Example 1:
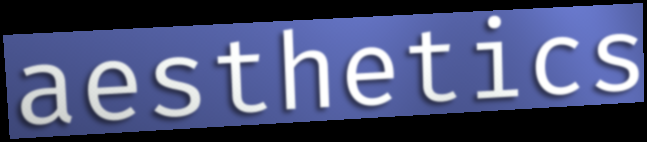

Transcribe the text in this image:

aesthetics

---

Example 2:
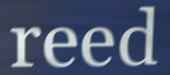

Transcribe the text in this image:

reed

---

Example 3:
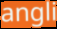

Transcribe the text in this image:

angli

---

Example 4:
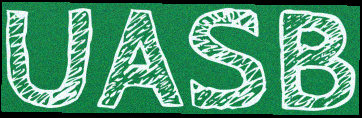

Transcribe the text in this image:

UASB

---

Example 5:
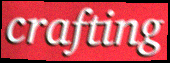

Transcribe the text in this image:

crafting